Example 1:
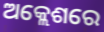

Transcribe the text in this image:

ଅକ୍ଲେଶରେ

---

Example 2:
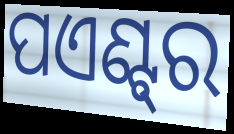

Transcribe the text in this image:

ପଏଣ୍ଟ୍‌ର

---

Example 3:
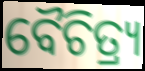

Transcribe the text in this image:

ବୈଚିତ୍ର୍ୟ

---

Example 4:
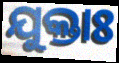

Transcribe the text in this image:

ଯୁକ୍ତାଃ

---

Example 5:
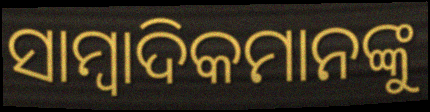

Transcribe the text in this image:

ସାମ୍ବାଦିକମାନଙ୍କୁ